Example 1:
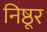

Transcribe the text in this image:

निष्ठूर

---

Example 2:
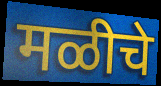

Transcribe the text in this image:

मळीचे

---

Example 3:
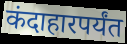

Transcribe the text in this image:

कंदाहारपर्यंत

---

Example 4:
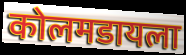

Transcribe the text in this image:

कोलमडायला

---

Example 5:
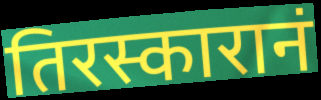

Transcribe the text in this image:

तिरस्कारानं